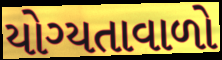
યોગ્યતાવાળો